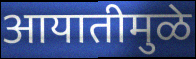
आयातीमुळे